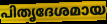
പിതൃദേശമായ